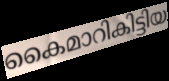
കൈമാറികിട്ടിയ